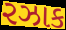
રઝાક